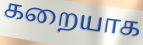
கறையாக